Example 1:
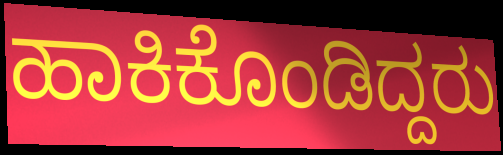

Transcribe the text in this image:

ಹಾಕಿಕೊಂಡಿದ್ದರು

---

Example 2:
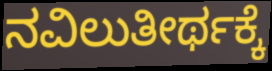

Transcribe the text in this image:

ನವಿಲುತೀರ್ಥಕ್ಕೆ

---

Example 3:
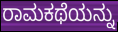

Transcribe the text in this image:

ರಾಮಕಥೆಯನ್ನು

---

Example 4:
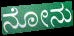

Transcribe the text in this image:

ನೋನು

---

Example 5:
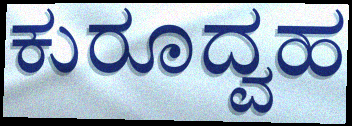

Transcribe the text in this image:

ಕುರೂದ್ವಹ